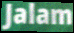
Jalam